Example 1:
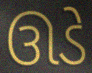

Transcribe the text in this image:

ઊડે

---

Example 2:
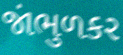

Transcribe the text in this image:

જાંભુળકર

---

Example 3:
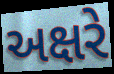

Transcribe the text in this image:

અક્ષરે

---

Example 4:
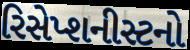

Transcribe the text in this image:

રિસેપ્શનીસ્ટનો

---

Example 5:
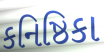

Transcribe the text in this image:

કનિષ્ઠિકા